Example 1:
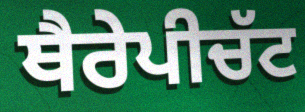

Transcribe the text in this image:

ਥੈਰੇਪੀਚੱਟ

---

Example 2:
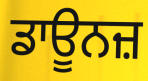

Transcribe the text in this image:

ਡਾਊਨਜ਼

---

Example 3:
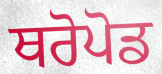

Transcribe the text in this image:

ਥਰੋਪੋਡ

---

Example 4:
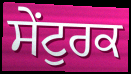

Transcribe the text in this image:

ਸੇਂਟੁਰਕ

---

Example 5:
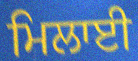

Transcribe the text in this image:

ਮਿਲਾਈ